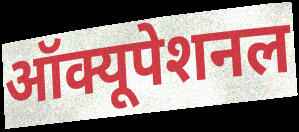
ऑक्यूपेशनल